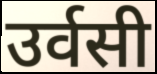
उर्वसी